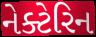
નેક્ટેરિન